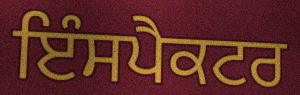
ਇੰਸਪੈਕਟਰ